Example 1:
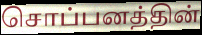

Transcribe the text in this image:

சொப்பனத்தின்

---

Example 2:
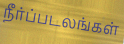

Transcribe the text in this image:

நீர்ப்படலங்கள்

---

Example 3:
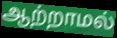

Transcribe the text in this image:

ஆற்றாமல்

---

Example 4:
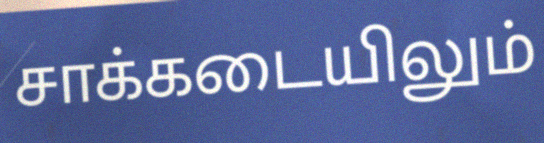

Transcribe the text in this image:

சாக்கடையிலும்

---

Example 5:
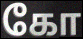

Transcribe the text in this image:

கோ